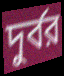
দুর্বর